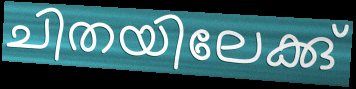
ചിതയിലേക്കു്